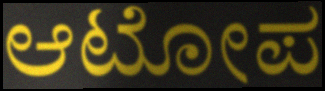
ಆಟೋಪ